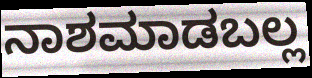
ನಾಶಮಾಡಬಲ್ಲ